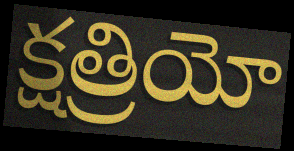
క్షత్రియో